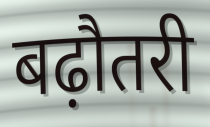
बढ़ौतरी